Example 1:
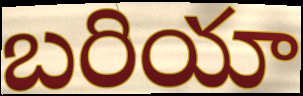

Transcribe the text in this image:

బరియా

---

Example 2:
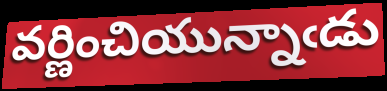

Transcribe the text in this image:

వర్ణించియున్నాఁడు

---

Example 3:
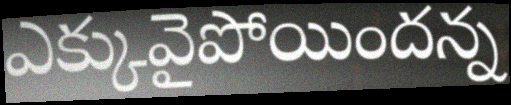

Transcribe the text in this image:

ఎక్కువైపోయిందన్న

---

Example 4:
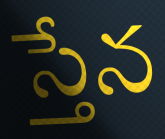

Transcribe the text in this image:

స్తేన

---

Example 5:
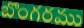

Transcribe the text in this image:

బొంగరము